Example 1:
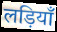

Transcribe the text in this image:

लड़ियाँ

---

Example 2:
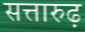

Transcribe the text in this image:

सत्तारुढ़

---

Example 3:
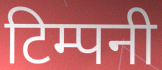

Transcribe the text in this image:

टिम्पनी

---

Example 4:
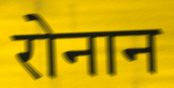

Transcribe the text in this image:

रोनान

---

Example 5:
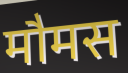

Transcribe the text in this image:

मौमस